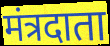
मंत्रदाता